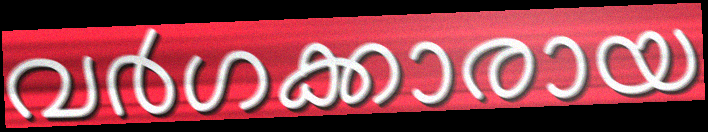
വർഗക്കാരായ